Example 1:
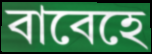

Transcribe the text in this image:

বাবেহে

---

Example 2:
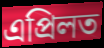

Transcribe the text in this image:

এপ্ৰিলত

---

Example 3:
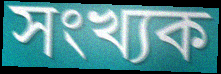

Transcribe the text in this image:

সংখ্যক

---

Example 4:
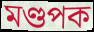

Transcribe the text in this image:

মণ্ডপক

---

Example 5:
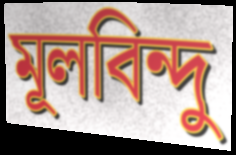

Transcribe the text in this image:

মূলবিন্দু